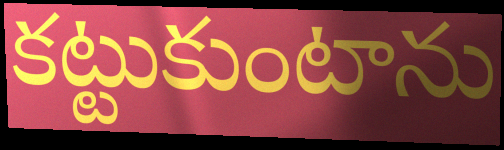
కట్టుకుంటాను